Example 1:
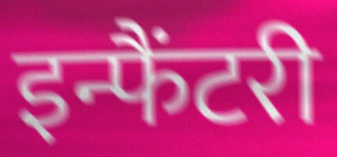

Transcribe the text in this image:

इन्फैंटरी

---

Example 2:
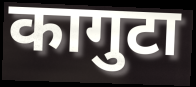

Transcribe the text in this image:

कागुटा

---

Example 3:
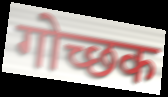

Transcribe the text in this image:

गोच्छक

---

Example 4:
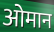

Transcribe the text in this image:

ओमान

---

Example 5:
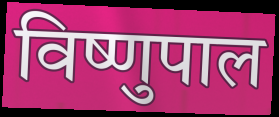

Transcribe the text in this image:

विष्णुपाल